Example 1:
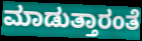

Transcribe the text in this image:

ಮಾಡುತ್ತಾರಂತೆ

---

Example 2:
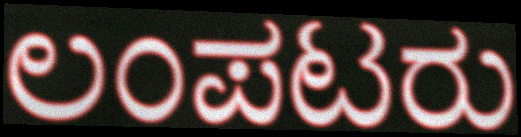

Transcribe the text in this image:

ಲಂಪಟರು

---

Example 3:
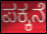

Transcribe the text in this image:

ಪಕ್ಕನೆ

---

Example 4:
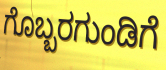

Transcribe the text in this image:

ಗೊಬ್ಬರಗುಂಡಿಗೆ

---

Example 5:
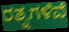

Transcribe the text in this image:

ರತ್ನಗಳಿವೆ